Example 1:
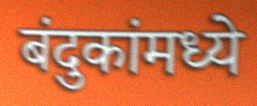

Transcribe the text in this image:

बंदुकांमध्ये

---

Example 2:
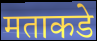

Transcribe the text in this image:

मताकडे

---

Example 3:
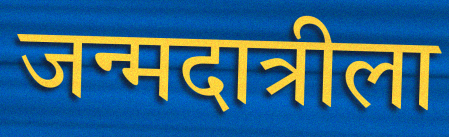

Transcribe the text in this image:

जन्मदात्रीला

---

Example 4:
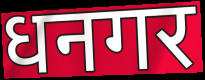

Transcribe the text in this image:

धनगर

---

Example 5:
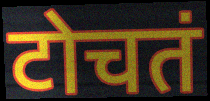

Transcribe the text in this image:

टोचतं